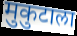
मुकुटाला